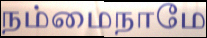
நம்மைநாமே